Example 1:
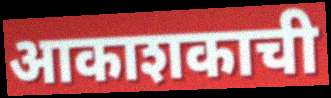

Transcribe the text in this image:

आकाशकाची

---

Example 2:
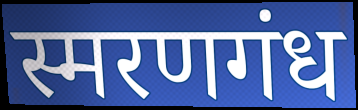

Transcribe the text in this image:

स्मरणगंध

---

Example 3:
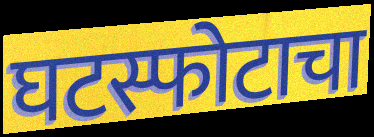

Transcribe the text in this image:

घटस्फोटाचा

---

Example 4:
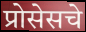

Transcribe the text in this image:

प्रोसेसचे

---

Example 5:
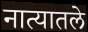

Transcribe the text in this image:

नात्यातले